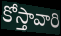
కోస్తావారి